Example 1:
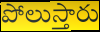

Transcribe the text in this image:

పోలుస్తారు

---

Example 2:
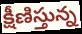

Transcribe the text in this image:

క్షీణిస్తున్న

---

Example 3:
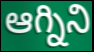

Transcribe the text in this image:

ఆగ్నిని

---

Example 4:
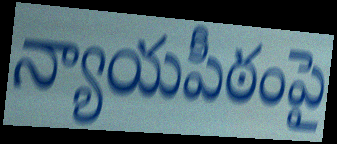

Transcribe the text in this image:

న్యాయపీఠంపై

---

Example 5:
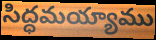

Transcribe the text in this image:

సిద్ధమయ్యాము